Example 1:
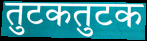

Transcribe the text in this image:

तुटकतुटक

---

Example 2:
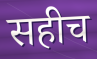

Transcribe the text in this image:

सहीच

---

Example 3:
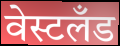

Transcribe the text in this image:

वेस्टलँड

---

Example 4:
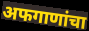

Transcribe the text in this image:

अफगाणांचा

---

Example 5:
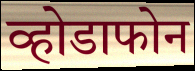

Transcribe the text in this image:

व्होडाफोन